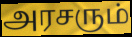
அரசரும்